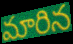
మారిన